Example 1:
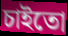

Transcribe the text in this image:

চাইতো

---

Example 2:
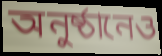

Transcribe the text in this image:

অনুষ্ঠানেও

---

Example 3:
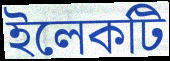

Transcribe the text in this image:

ইলেকটি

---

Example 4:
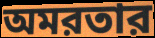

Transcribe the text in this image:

অমরতার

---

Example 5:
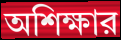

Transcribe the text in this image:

অশিক্ষার